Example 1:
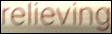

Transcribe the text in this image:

relieving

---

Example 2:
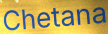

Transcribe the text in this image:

Chetana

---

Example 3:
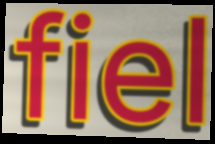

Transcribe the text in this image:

fiel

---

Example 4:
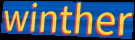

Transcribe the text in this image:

winther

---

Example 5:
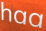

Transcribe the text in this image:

haa